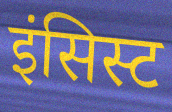
इंसिस्ट